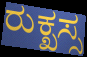
ರುಕ್ಖಸ್ಸ